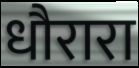
धौरारा